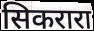
सिकरारा